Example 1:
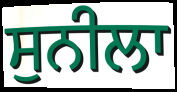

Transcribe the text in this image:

ਸੁਨੀਲਾ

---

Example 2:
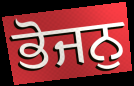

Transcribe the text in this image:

ਭੋਜਨੁ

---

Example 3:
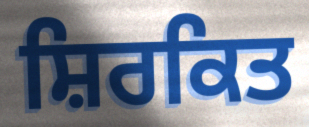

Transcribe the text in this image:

ਸ਼ਿਰਕਿਤ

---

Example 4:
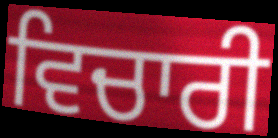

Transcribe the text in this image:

ਵਿਚਾਰੀ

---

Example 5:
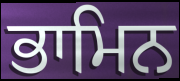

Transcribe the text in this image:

ਭਾਮਿਨ